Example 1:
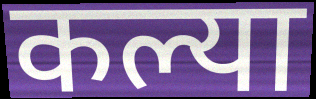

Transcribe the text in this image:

कल्या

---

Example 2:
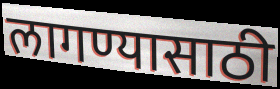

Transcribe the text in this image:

लागण्यासाठी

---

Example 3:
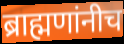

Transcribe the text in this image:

ब्राह्मणांनीच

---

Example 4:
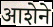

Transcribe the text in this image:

आशेने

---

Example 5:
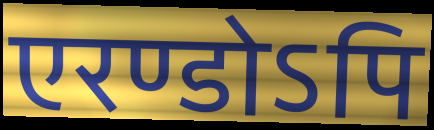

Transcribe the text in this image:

एरण्डोऽपि